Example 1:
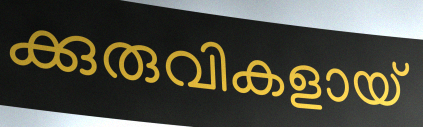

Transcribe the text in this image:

ക്കുരുവികളായ്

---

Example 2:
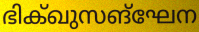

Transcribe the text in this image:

ഭിക്ഖുസങ്ഘേന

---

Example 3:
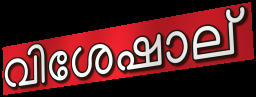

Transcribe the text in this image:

വിശേഷാല്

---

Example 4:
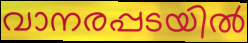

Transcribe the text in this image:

വാനരപ്പടയിൽ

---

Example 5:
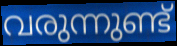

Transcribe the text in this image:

വരുന്നുണ്ട്